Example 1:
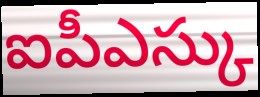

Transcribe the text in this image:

ఐపీఎస్కు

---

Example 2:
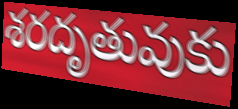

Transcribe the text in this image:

శరదృతువుకు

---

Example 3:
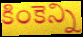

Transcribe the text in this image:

కింకెన్ని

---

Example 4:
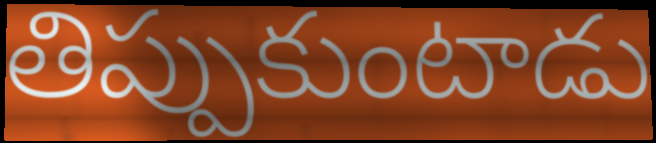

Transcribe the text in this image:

తిప్పుకుంటాడు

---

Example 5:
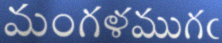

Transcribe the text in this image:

మంగళముగఁ